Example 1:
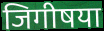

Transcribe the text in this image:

जिगीषया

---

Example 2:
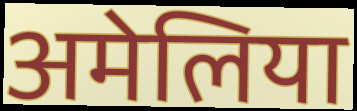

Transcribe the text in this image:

अमेलिया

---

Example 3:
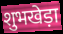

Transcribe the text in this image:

शुभखेड़ा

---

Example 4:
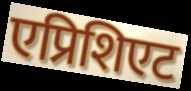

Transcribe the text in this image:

एप्रिशिएट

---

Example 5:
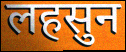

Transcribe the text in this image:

लहसुन